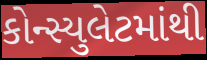
કોન્સ્યુલેટમાંથી